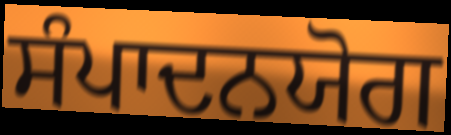
ਸੰਪਾਦਨਯੋਗ